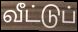
வீட்டுப்